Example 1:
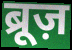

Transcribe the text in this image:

ब्रूज़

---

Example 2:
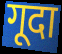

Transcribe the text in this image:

गूदा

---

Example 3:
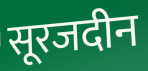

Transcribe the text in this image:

सूरजदीन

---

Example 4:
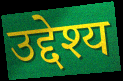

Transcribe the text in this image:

उद्देश्‍य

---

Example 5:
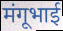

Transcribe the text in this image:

मंगूभाई